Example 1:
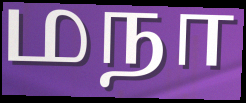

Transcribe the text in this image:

மநா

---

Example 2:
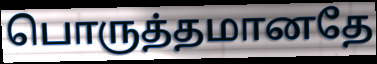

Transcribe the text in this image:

பொருத்தமானதே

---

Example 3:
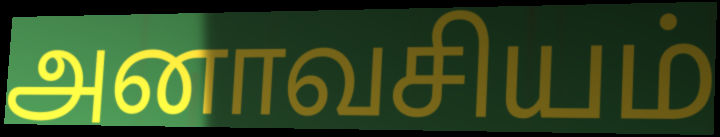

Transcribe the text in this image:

அனாவசியம்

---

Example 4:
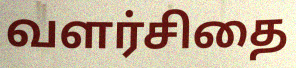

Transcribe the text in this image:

வளர்சிதை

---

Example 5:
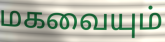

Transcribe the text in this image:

மகவையும்